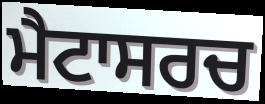
ਮੈਟਾਸਰਚ